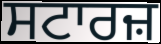
ਸਟਾਰਜ਼